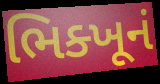
ભિક્ખૂનં